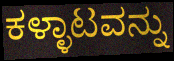
ಕಳ್ಳಾಟವನ್ನು